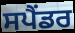
ਸਪੈਂਡਰ